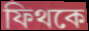
ফিথকে